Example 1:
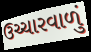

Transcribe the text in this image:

ઉચ્ચારવાળું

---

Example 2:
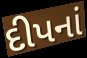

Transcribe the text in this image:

દીપનાં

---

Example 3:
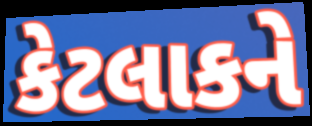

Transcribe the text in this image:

કેટલાકને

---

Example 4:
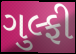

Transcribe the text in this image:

ગુલ્ફી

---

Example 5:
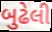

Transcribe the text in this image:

બુઢેલી